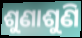
ଶୁଣାଶୁଣି